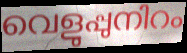
വെളുപ്പുനിറം